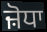
ਜ਼ੋਧਾ